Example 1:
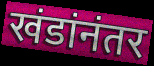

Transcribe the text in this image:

खंडांनंतर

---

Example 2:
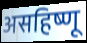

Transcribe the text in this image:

असहिष्णू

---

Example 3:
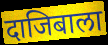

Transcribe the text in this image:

दाजिबाला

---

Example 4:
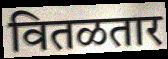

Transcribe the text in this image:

वितळतार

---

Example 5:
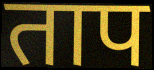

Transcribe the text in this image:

ताप